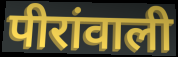
पीरांवाली